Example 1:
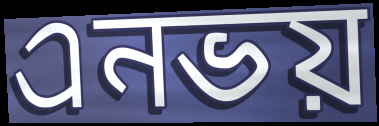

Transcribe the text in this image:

এনভয়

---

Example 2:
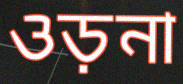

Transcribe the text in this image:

ওড়না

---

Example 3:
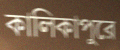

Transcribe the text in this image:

কালিকাপুরে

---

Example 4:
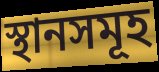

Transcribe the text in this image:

স্থানসমূহ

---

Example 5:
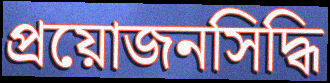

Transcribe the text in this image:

প্রয়োজনসিদ্ধি